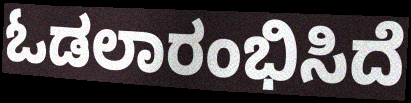
ಓಡಲಾರಂಭಿಸಿದೆ